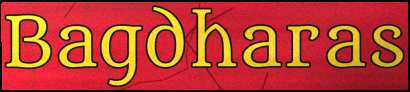
Bagdharas